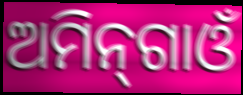
ଅମିନ୍‌ଗାଓଁ